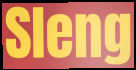
Sleng